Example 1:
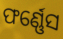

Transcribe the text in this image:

ଫର୍ଣ୍ଣେସ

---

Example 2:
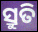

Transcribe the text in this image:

ସ୍ରୁତି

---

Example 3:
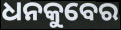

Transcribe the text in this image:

ଧନକୁବେର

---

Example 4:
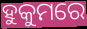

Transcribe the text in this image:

ହୁକୁମରେ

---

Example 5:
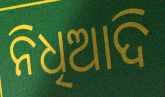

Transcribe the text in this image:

ନିଧିଆଦି